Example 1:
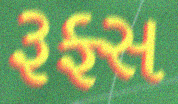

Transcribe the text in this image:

રૂફ્સ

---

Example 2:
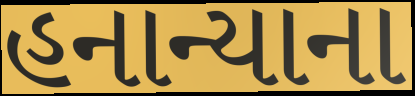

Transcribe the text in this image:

હનાન્યાના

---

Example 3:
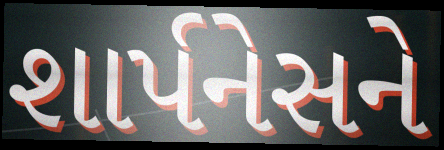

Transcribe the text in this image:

શાર્પનેસને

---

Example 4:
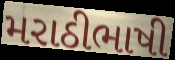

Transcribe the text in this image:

મરાઠીભાષી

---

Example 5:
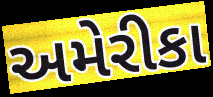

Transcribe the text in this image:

અમેરીકા